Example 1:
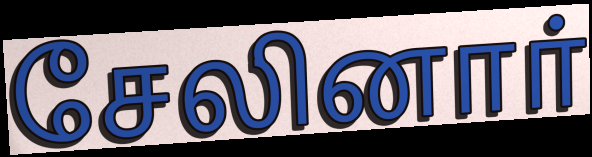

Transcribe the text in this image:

சேலினார்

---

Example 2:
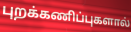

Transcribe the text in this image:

புறக்கணிப்புகளால்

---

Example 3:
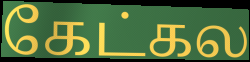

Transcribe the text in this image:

கேட்கல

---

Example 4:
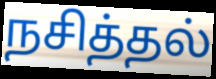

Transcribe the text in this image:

நசித்தல்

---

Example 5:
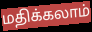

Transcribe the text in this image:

மதிக்கலாம்